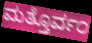
ಮತ್ತೊರ್ವಂ